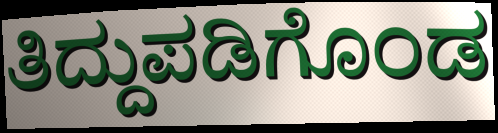
ತಿದ್ದುಪಡಿಗೊಂಡ